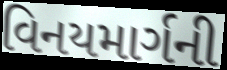
વિનયમાર્ગની